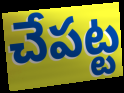
చేపట్ట